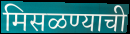
मिसळण्याची